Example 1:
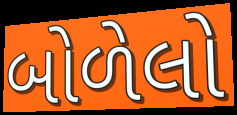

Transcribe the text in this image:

બોળેલો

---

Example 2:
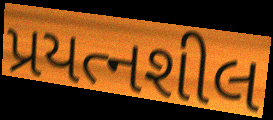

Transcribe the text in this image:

પ્રયત્નશીલ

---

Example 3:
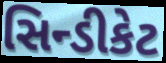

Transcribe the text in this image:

સિન્ડીકેટ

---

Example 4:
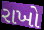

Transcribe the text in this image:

રાખો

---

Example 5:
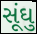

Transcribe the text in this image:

સૂંઘુ